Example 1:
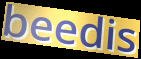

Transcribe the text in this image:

beedis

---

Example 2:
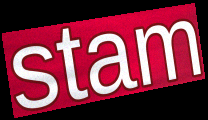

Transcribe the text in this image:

stam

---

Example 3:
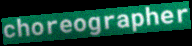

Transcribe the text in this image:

choreographer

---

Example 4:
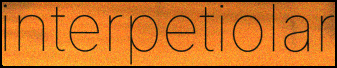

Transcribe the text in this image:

interpetiolar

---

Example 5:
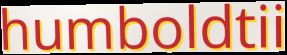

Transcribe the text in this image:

humboldtii